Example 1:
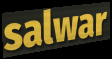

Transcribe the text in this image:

salwar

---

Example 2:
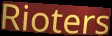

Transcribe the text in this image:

Rioters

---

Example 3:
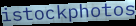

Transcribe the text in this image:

istockphotos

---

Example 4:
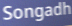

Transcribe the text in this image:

Songadh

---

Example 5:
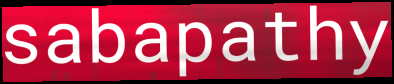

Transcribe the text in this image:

sabapathy